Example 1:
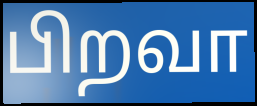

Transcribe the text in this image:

பிறவா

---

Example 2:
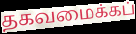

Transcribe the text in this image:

தகவமைக்கப்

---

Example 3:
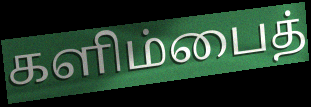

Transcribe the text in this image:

களிம்பைத்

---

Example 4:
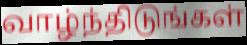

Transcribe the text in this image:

வாழ்ந்திடுங்கள்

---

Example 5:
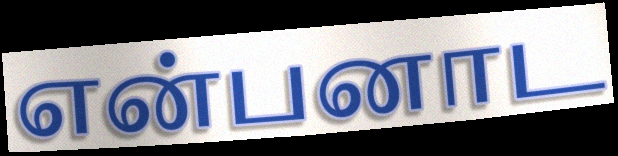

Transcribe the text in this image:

என்பனாட